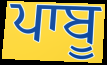
ਪਾਬੂ